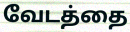
வேடத்தை